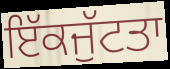
ਇੱਕਜੁੱਟਤਾ